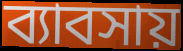
ব্যাবসায়